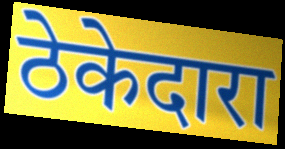
ठेकेदारा